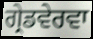
ਗ੍ਰੇਡਵੇਰਵਾ